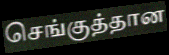
செங்குத்தான